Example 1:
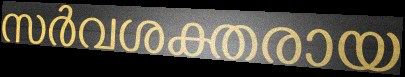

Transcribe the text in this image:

സർവശക്തരായ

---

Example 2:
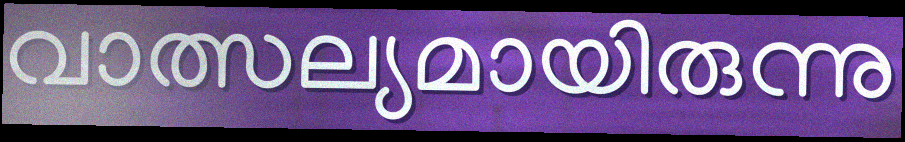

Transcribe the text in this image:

വാത്സല്യമായിരുന്നു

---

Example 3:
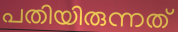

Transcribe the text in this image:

പതിയിരുന്നത്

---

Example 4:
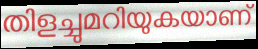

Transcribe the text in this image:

തിളച്ചുമറിയുകയാണ്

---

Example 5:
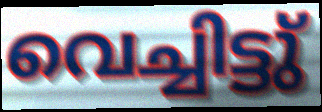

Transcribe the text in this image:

വെച്ചിട്ടു്